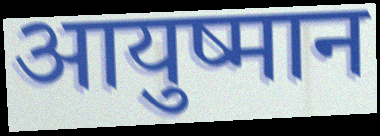
आयुष्मान